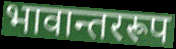
भावान्तररूप